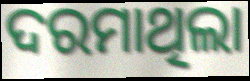
ଦରମାଥିଲା